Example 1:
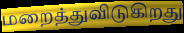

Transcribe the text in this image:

மறைத்துவிடுகிறது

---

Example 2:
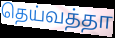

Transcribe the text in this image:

தெய்வத்தா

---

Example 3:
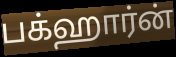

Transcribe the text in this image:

பக்ஹார்ன்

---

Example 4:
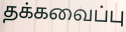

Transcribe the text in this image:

தக்கவைப்பு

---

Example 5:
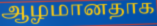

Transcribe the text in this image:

ஆழமானதாக